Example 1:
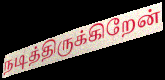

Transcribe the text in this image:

நடித்திருக்கிறேன்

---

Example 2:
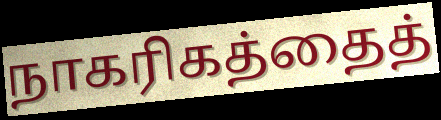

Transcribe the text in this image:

நாகரிகத்தைத்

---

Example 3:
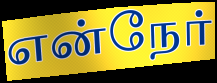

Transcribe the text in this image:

என்நேர்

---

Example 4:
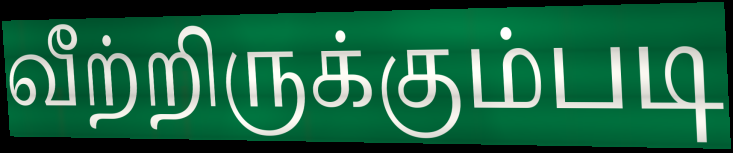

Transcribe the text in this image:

வீற்றிருக்கும்படி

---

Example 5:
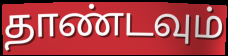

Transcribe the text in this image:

தாண்டவும்